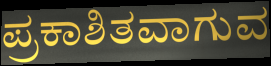
ಪ್ರಕಾಶಿತವಾಗುವ